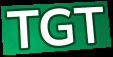
TGT